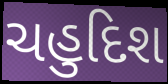
ચહુદિશ